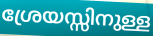
ശ്രേയസ്സിനുള്ള